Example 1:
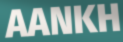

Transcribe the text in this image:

AANKH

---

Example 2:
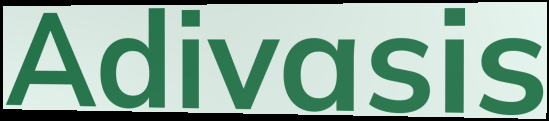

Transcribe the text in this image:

Adivasis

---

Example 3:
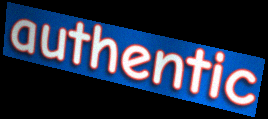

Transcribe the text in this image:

authentic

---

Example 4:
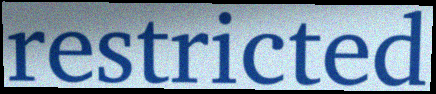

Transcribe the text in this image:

restricted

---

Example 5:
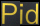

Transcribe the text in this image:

Pid